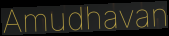
Amudhavan